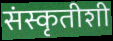
संस्कृतीशी